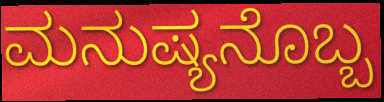
ಮನುಷ್ಯನೊಬ್ಬ